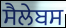
ਸੈਲੇਬਸ